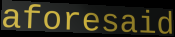
aforesaid